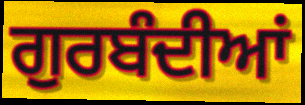
ਗੁਰਬੰਦੀਆਂ